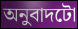
অনুবাদটো